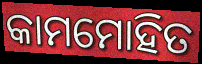
କାମମୋହିତ